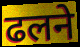
ढलने